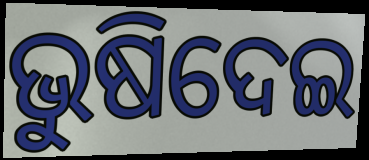
ଭୁଷିଦେଇ